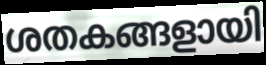
ശതകങ്ങളായി